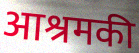
आश्रमकी